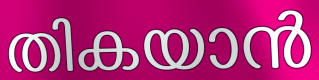
തികയാൻ